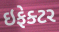
ઇફેક્ટર